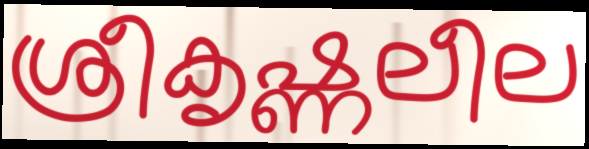
ശ്രീകൃഷ്ണലീല